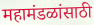
महामंडळांसाठी